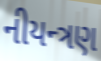
નીયન્ત્રણ